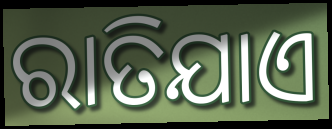
ରାତିଯାଏ